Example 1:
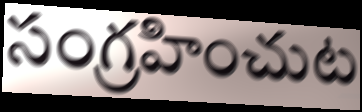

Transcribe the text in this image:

సంగ్రహించుట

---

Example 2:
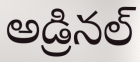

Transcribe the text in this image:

అడ్రినల్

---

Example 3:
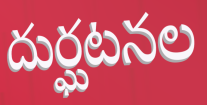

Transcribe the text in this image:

దుర్ఘటనల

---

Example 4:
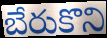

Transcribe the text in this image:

బేరుకొని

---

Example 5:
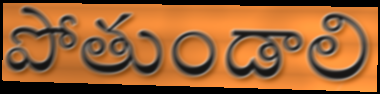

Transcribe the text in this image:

పోతుండాలి